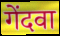
गेंदवा